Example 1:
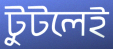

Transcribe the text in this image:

টুটলেই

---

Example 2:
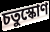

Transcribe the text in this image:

চতুস্কোণ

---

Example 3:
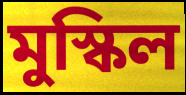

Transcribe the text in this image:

মুস্কিল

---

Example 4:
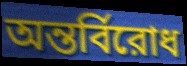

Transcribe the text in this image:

অন্তর্বিরোধ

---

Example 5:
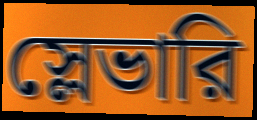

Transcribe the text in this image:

স্লেভারি